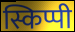
स्किप्पी